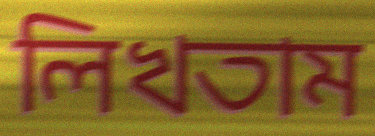
লিখতাম